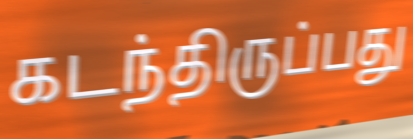
கடந்திருப்பது